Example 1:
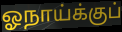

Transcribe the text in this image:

ஓநாய்க்குப்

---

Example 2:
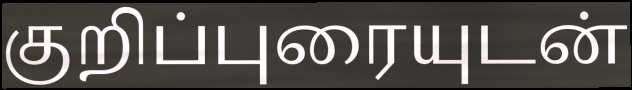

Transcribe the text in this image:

குறிப்புரையுடன்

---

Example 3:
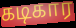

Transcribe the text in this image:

கடிகார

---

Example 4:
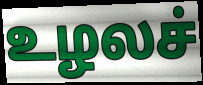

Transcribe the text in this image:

உழலச்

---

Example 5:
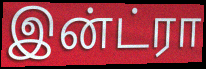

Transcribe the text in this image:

இன்ட்ரா